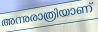
അന്നുരാത്രിയാണ്